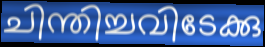
ചിന്തിച്ചവിടേക്കു